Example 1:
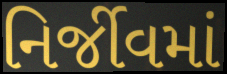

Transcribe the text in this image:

નિર્જીવમાં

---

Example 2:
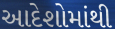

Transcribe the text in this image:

આદેશોમાંથી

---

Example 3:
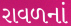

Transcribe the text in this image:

રાવળનાં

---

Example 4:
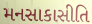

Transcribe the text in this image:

મનસાકાસીતિ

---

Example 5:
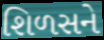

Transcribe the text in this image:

શિળસને